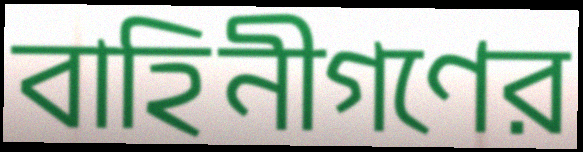
বাহিনীগণের